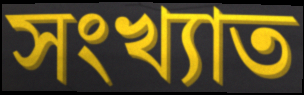
সংখ্যাত